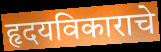
हृदयविकाराचे